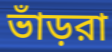
ভাঁড়রা